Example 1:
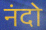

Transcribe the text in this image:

नंदो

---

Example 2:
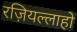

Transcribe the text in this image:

रज़ियल्लाहो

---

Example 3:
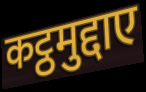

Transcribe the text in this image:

कट्ठमुद्दाए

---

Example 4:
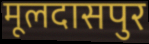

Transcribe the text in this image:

मूलदासपुर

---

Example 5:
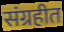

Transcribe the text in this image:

संग्रहीत